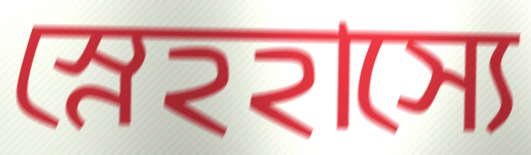
স্নেহহাস্যে